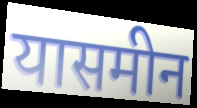
यासमीन